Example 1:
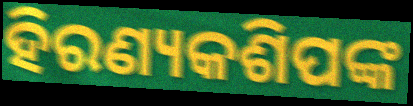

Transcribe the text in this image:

ହିରଣ୍ୟକଶିପଙ୍କ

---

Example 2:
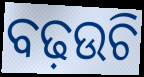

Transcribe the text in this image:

ବଢ଼ଉଚି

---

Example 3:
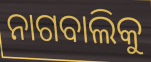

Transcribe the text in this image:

ନାଗବାଲିକୁ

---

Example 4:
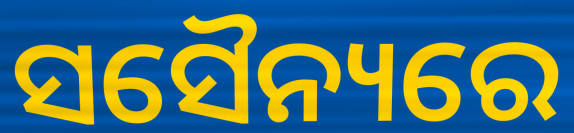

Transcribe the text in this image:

ସସୈନ୍ୟରେ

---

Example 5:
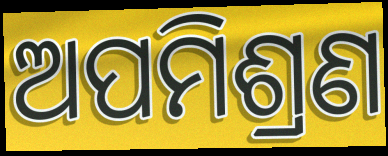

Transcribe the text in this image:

ଅପମିଶ୍ରଣ